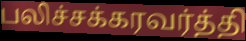
பலிச்சக்கரவர்த்தி